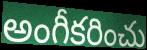
అంగీకరించు